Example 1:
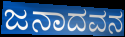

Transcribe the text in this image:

ಜನಾದವನ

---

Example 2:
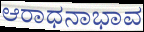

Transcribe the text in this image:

ಆರಾಧನಾಭಾವ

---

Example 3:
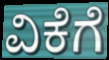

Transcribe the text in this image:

ವಿಕೆಗೆ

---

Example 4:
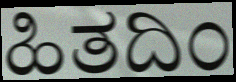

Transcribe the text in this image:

ಹಿತದಿಂ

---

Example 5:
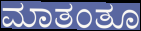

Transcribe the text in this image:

ಮಾತಂತೂ